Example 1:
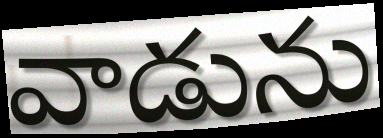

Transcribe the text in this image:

వాడును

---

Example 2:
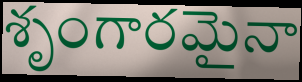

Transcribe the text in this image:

శృంగారమైనా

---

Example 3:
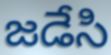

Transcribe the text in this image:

జడేసి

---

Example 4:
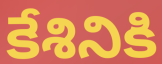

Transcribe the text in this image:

కేశినికి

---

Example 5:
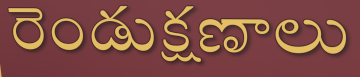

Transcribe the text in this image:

రెండుక్షణాలు